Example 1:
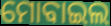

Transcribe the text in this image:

ମୋବାଇଲ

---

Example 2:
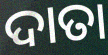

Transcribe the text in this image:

ଦାତା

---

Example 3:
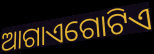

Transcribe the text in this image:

ଆଗାଏଗୋଟିଏ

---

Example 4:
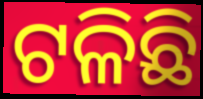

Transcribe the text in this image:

ଟଳିଛି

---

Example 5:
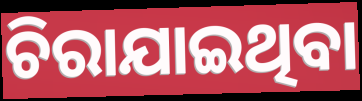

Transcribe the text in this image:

ଚିରାଯାଇଥିବା